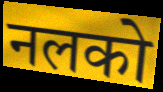
नलको